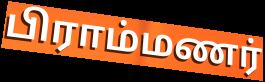
பிராம்மணர்